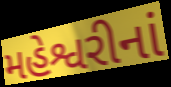
મહેશ્વરીનાં